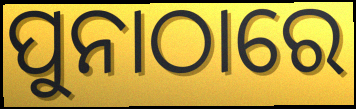
ପୁନାଠାରେ